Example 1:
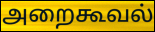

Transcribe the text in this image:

அறைகூவல்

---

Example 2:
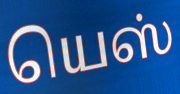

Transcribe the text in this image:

யெஸ்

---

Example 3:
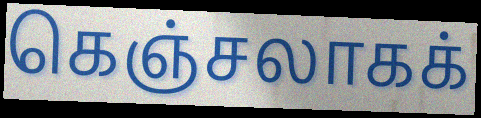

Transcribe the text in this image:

கெஞ்சலாகக்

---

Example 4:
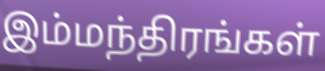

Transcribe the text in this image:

இம்மந்திரங்கள்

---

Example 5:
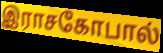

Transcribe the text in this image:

இராசகோபால்